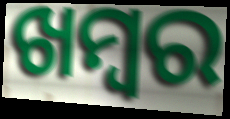
ଖମ୍ବର